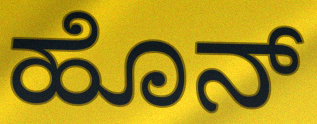
ಹೊನ್